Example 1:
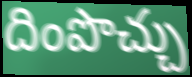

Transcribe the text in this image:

దింపొచ్చు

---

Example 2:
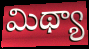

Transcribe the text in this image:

మిథ్యా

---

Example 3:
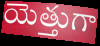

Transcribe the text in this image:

యెత్తుగా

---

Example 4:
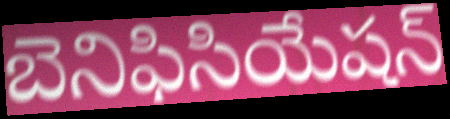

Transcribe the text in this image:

బెనిఫిసియేషన్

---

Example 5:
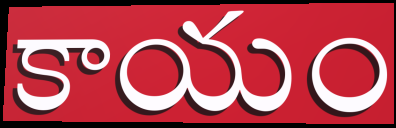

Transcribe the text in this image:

కాయం